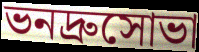
ভনদ্রুসোভা